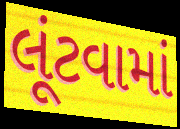
લૂંટવામાં